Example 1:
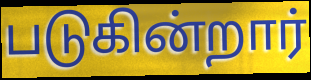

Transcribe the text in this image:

படுகின்றார்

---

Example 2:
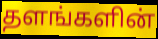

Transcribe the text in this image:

தளங்களின்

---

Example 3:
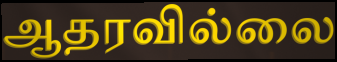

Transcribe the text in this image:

ஆதரவில்லை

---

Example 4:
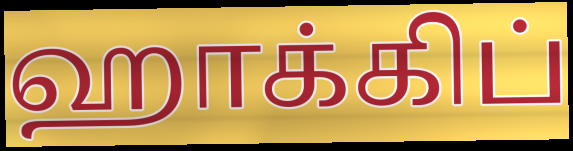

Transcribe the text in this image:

ஹாக்கிப்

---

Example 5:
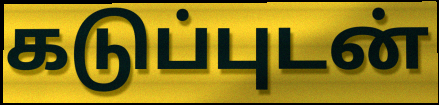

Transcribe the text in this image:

கடுப்புடன்